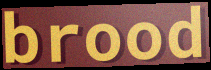
brood